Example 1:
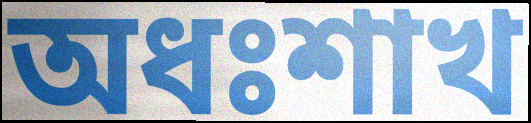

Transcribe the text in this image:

অধঃশাখ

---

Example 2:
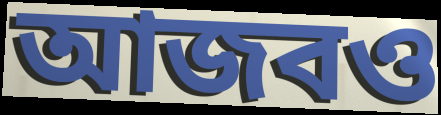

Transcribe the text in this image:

আজবও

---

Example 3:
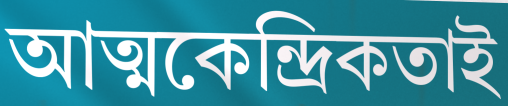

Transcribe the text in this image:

আত্মকেন্দ্রিকতাই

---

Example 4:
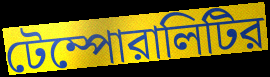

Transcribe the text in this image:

টেম্পোরালিটির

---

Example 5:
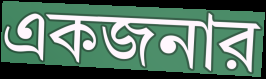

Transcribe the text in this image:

একজনার